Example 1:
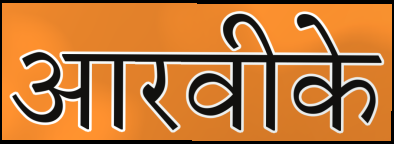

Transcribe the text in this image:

आरवीके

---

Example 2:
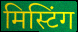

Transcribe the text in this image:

मिस्टिंग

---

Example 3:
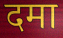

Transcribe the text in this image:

दमा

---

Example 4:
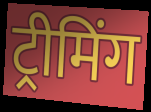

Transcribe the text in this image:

ट्रीमिंग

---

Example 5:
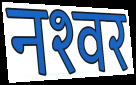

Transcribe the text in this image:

नश्वर